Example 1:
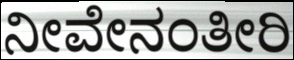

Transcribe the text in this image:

ನೀವೇನಂತೀರಿ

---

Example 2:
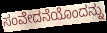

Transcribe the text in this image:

ಸಂವೇದನೆಯೊಂದನ್ನು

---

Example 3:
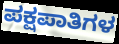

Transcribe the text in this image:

ಪಕ್ಷಪಾತಿಗಳ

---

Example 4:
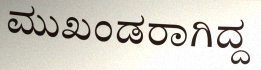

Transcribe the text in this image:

ಮುಖಂಡರಾಗಿದ್ದ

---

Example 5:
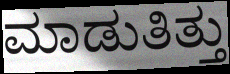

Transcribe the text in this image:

ಮಾಡುತಿತ್ತು